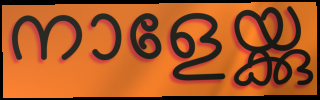
നാളേയ്ക്കു